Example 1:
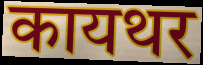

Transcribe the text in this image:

कायथर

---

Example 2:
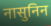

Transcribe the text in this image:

नासुनिन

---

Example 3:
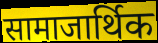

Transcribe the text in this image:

सामाजार्थिक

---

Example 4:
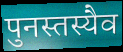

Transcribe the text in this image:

पुनस्तस्यैव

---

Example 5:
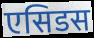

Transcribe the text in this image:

एसिडस